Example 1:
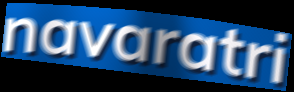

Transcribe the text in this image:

navaratri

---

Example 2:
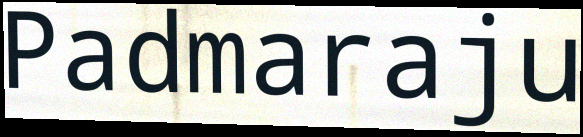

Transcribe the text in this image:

Padmaraju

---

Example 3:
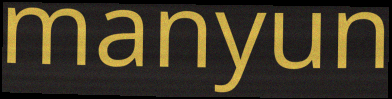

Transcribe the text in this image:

manyun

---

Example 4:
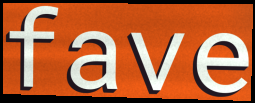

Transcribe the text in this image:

fave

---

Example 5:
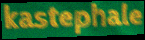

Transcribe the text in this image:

kastephale